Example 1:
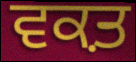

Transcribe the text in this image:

ਵਕ਼ਤ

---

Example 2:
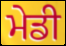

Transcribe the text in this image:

ਮੇਡੀ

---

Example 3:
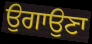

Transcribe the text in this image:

ਉਗਾਉਣਾ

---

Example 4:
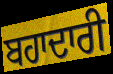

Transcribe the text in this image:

ਬਹਾਦਾਰੀ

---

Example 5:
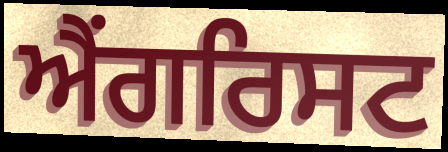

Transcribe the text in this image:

ਐਂਗਰਿਸਟ